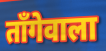
ताँगेवाला